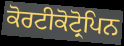
ਕੋਰਟੀਕੋਟ੍ਰੋਪਿਨ